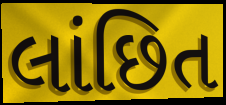
લાંછિત